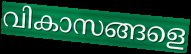
വികാസങ്ങളെ